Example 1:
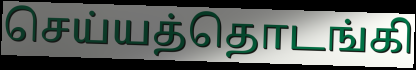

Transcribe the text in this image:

செய்யத்தொடங்கி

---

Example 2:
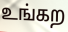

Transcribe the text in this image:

உங்கற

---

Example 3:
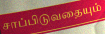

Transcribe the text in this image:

சாப்பிடுவதையும்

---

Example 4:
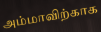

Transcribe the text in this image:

அம்மாவிற்காக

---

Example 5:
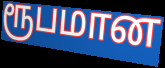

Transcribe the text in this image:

ரூபமான